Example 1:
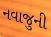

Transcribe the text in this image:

નવાજુની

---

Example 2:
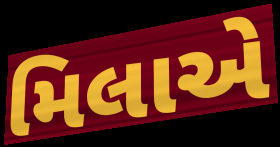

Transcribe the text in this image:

મિલાએ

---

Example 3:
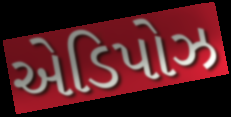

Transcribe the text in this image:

એડિપોઝ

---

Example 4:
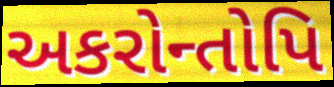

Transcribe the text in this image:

અકરોન્તોપિ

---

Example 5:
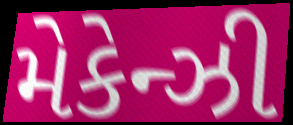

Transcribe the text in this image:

મેકેન્ઝી